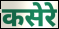
कसेरे